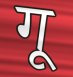
गू